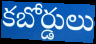
కబోర్డులు